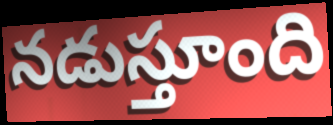
నడుస్తూంది